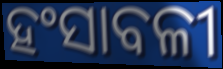
ହଂସାବଳୀ